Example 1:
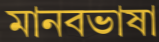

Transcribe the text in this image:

মানবভাষা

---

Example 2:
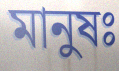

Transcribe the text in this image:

মানুষঃ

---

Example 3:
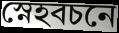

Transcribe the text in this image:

স্নেহবচনে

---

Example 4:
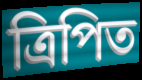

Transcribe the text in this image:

ত্রিপিত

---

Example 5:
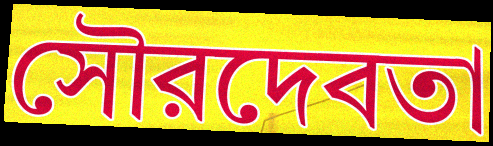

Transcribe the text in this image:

সৌরদেবতা